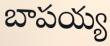
బాపయ్య